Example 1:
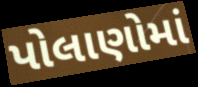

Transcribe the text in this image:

પોલાણોમાં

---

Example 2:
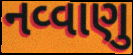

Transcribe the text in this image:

નવ્વાણુ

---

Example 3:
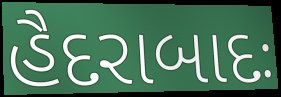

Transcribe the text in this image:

હૈદરાબાદઃ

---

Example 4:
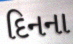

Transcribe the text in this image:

દિનના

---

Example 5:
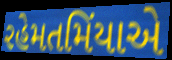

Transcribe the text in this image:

રહેમતમિંયાએ